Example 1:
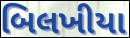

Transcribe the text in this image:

બિલખીયા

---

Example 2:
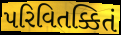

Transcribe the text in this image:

પરિવિતક્કિતં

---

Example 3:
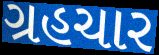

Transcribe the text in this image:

ગ્રહચાર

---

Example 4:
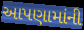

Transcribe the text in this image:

આપણામાંની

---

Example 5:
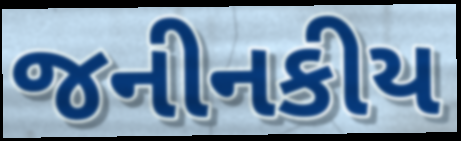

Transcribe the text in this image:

જનીનકીય